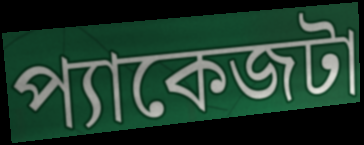
প্যাকেজটা